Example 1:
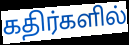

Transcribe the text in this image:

கதிர்களில்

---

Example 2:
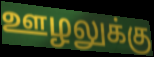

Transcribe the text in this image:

ஊழலுக்கு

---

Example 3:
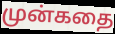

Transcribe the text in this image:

முன்கதை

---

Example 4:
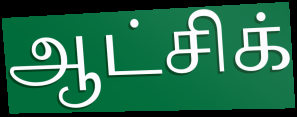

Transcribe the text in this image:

ஆட்சிக்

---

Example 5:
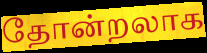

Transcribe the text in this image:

தோன்றலாக